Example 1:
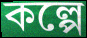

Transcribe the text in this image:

কল্পে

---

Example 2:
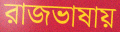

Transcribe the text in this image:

রাজভাষায়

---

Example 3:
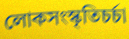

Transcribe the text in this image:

লোকসংস্কৃতিচর্চা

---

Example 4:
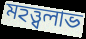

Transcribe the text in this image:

মহত্ত্বলাভ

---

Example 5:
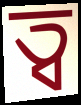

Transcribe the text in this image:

ত্ব